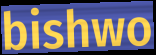
bishwo